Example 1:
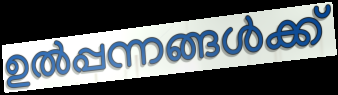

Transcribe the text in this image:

ഉൽപ്പന്നങ്ങൾക്ക്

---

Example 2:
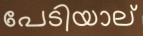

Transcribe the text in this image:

പേടിയാല്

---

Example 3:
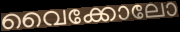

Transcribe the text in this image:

വൈക്കോലോ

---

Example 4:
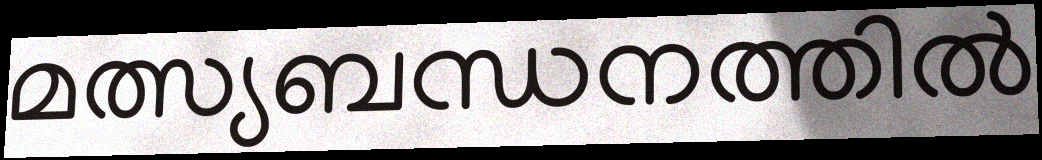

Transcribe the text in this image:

മത്സ്യബന്ധനത്തിൽ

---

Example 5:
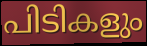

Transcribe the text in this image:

പിടികളും